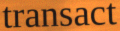
transact